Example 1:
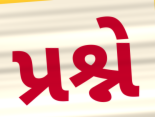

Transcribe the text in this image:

પ્રશ્ને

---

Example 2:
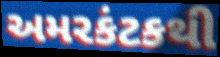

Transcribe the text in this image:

અમરકંટકથી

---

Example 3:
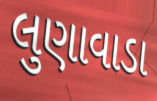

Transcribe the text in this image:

લુણાવાડા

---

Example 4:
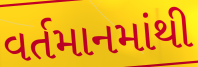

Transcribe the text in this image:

વર્તમાનમાંથી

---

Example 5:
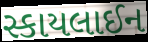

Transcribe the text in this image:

સ્કાયલાઈન